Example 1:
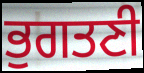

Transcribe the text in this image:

ਭੁਗਤਣੀ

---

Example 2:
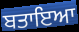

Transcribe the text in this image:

ਬਤਾਇਆ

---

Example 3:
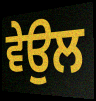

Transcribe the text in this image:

ਵੇਉਲ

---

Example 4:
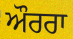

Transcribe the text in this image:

ਔਰਰਾ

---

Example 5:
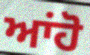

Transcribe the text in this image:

ਆਂਹੋ